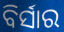
ବିର୍ସାର